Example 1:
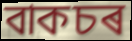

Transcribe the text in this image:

বাকচৰ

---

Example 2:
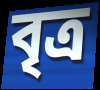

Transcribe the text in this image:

বৃত্ৰ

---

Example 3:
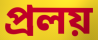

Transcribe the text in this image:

প্ৰলয়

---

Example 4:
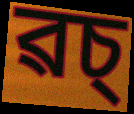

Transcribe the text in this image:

ৱচ্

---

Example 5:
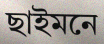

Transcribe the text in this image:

ছাইমনে